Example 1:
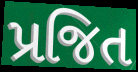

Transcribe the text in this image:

પ્રજિત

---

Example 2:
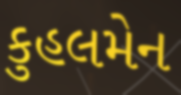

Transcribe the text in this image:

કુહલમેન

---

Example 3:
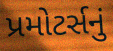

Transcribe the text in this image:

પ્રમોટર્સનું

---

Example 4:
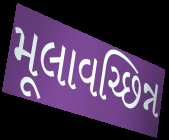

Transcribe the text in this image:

મૂલાવચ્છિન્ન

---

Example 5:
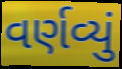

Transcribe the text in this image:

વર્ણવ્યું